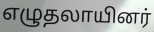
எழுதலாயினர்